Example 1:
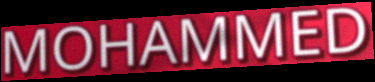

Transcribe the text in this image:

MOHAMMED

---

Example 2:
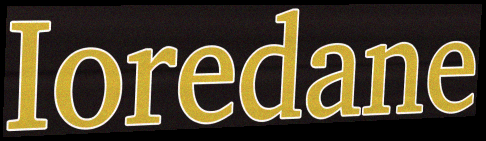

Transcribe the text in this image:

Ioredane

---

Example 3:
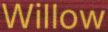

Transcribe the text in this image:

Willow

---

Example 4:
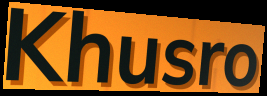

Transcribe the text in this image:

Khusro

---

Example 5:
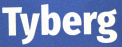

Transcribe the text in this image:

Tyberg